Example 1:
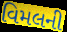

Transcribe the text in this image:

વિમલની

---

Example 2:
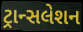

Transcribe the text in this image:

ટ્રાન્સલેશન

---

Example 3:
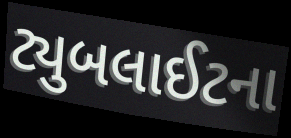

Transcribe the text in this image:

ટ્યુબલાઈટના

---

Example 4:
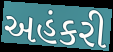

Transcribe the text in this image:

અહંકરી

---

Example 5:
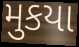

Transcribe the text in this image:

મુકયા